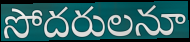
సోదరులనూ